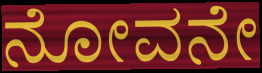
ನೋವನೇ